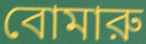
বোমারু